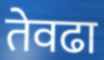
तेवढा